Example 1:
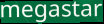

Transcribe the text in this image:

megastar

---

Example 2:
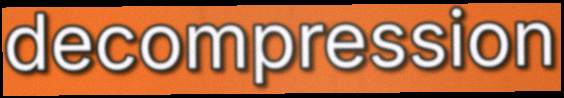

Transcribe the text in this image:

decompression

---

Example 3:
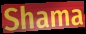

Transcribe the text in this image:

Shama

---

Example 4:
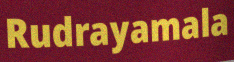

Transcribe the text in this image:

Rudrayamala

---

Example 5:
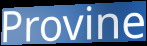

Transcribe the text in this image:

Provine